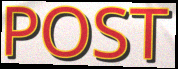
POST